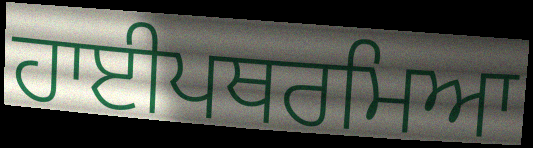
ਹਾਈਪਥਰਮਿਆ